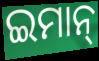
ଇମାନ୍